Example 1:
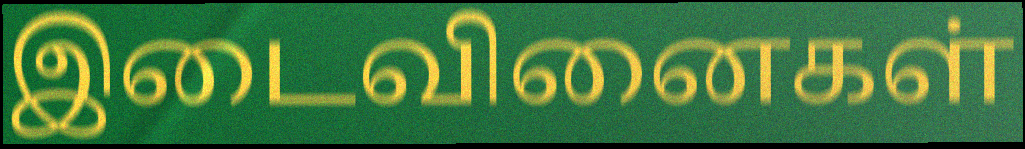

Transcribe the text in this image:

இடைவினைகள்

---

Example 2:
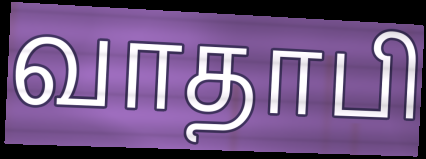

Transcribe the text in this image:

வாதாபி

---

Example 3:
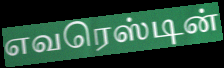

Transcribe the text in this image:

எவரெஸ்டின்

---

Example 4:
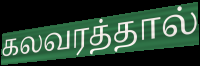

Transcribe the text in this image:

கலவரத்தால்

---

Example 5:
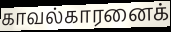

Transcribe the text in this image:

காவல்காரனைக்